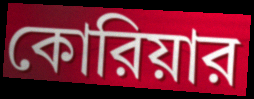
কোরিয়ার